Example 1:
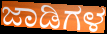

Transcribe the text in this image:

ಜಾಡಿಗಳ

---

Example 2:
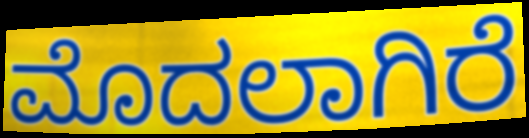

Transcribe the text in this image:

ಮೊದಲಾಗಿರೆ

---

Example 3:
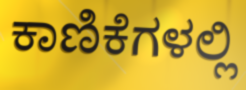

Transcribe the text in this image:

ಕಾಣಿಕೆಗಳಲ್ಲಿ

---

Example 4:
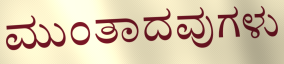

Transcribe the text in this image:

ಮುಂತಾದವುಗಳು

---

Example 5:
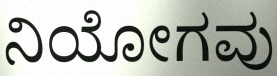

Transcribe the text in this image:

ನಿಯೋಗವು